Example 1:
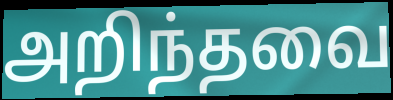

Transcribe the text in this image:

அறிந்தவை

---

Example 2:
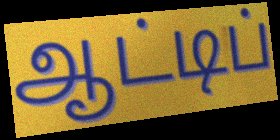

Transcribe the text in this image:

ஆட்டிப்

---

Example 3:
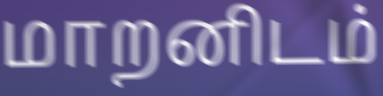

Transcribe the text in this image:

மாறனிடம்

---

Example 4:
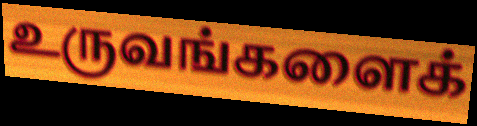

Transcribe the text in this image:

உருவங்களைக்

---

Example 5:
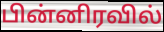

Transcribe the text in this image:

பின்னிரவில்